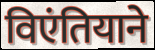
विएंतियाने